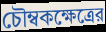
চৌম্বকক্ষেত্রের